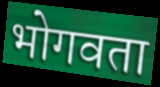
भोगवता